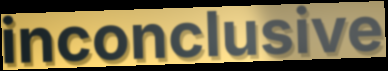
inconclusive